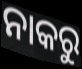
ନାକରୁ